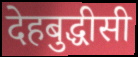
देहबुद्धीसी